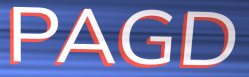
PAGD